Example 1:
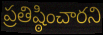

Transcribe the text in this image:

ప్రతిష్ఠించారని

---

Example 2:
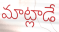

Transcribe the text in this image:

మాట్లాడే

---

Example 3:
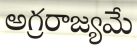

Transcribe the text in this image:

అగ్రరాజ్యమే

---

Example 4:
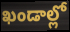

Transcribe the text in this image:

ఖండాల్లో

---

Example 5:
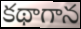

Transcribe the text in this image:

కథాగాన